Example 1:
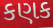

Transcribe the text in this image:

કણક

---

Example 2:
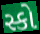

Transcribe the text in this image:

સ્કો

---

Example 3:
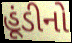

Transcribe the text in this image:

હૂંડીનો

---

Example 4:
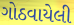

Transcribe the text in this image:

ગોઠવાયેલી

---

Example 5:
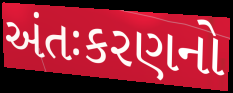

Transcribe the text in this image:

અંતઃકરણનો